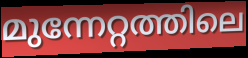
മുന്നേറ്റത്തിലെ